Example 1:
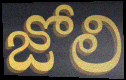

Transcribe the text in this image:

జోలి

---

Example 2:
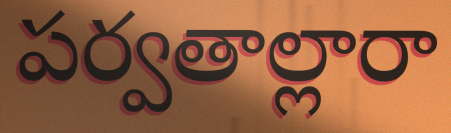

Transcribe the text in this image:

పర్వతాల్లారా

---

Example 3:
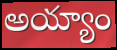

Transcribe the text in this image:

అయ్యాం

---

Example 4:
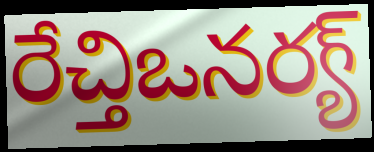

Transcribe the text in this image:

రేచ్తిఒనర్య్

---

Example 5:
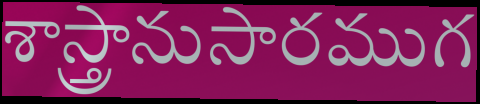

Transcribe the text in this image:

శాస్త్రానుసారముగ